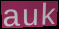
auk